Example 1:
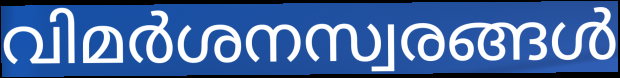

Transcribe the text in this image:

വിമർശനസ്വരങ്ങൾ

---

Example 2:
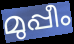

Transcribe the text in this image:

മുപ്പീം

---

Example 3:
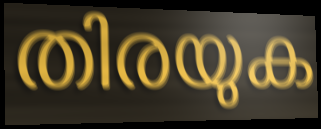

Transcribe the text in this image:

തിരയുക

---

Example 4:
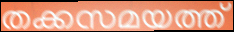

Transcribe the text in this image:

തക്കസമയത്ത്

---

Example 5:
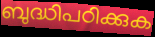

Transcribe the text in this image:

ബുദ്ധിപഠിക്കുക